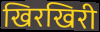
खिरखिरी